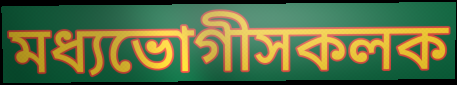
মধ্যভোগীসকলক